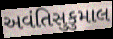
અવંતિસુકુમાલ